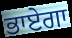
ਭਾਏਗਾ